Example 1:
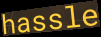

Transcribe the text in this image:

hassle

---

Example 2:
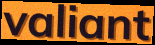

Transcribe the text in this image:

valiant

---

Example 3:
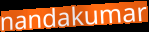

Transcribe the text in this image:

nandakumar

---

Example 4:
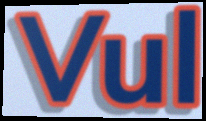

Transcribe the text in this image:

Vul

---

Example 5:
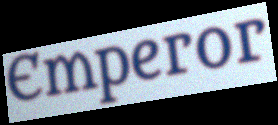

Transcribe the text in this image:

Emperor